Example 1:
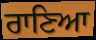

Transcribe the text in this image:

ਰਾਣਿਆ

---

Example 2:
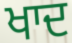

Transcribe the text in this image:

ਖਾਦ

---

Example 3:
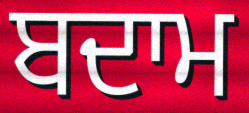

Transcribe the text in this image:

ਬਦਾਮ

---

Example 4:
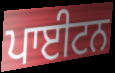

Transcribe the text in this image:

ਪਾਈਟਨ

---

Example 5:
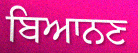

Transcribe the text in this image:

ਬਿਆਨਣ